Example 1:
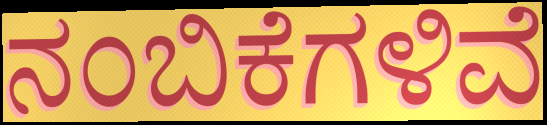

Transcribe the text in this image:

ನಂಬಿಕೆಗಳಿವೆ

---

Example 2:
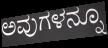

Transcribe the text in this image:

ಅವುಗಳನ್ನೂ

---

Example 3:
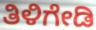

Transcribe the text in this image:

ತಿಳಿಗೇಡಿ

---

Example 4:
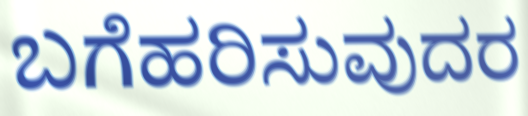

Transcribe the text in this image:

ಬಗೆಹರಿಸುವುದರ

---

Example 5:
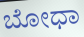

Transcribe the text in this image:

ಬೋಧಾ